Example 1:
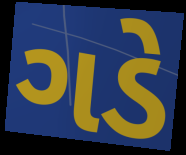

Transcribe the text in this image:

ગડે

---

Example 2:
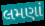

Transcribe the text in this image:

લમણાં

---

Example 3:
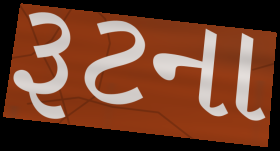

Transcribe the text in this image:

રૂટના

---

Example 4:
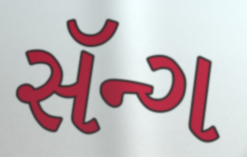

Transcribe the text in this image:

સૅન્ગ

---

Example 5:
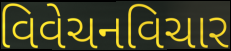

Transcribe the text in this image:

વિવેચનવિચાર